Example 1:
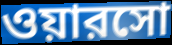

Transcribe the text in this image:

ওয়ারসো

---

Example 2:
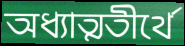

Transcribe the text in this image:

অধ্যাত্মতীর্থে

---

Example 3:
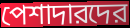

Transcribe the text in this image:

পেশাদারদের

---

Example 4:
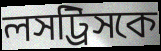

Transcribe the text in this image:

লসট্রিসকে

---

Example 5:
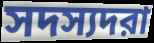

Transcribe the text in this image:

সদস্যদরা